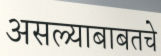
असल्याबाबतचे